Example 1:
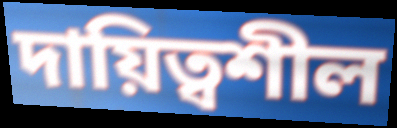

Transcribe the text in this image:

দায়িত্বশীল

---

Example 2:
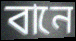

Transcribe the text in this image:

বানে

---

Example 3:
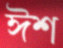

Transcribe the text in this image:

ঈশ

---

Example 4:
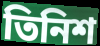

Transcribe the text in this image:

তিনিশ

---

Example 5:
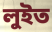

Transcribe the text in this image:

লুইত